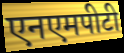
एनएमपीटी